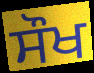
ਸੌਖ